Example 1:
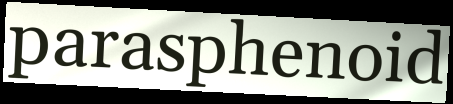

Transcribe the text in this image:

parasphenoid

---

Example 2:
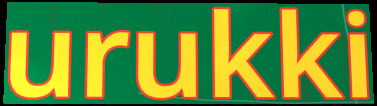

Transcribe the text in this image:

urukki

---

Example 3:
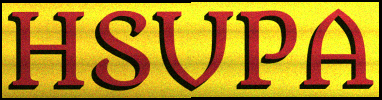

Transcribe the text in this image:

HSUPA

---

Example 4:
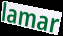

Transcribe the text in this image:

lamar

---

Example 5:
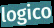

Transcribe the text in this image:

logico